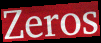
Zeros